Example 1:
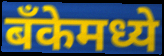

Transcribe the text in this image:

बँकेमध्ये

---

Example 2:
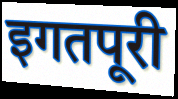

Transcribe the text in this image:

इगतपूरी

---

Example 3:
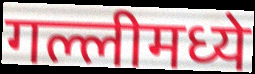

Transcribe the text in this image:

गल्लीमध्ये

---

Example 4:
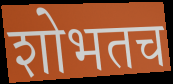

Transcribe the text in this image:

शोभतच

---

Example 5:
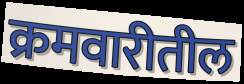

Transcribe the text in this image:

क्रमवारीतील